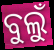
ବୁଲୁଁ